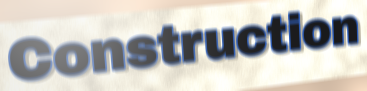
Construction